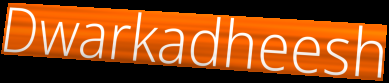
Dwarkadheesh